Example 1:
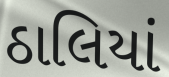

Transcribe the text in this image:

ઠાલિયાં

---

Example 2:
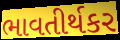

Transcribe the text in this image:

ભાવતીર્થકર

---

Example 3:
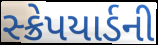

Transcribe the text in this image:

સ્ક્રેપયાર્ડની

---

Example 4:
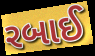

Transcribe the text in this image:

રબાઈ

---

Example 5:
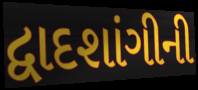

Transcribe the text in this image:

દ્વાદશાંગીની